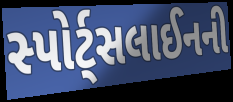
સ્પોર્ટ્સલાઈનની